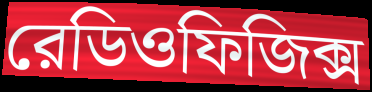
রেডিওফিজিক্স